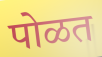
पोळत